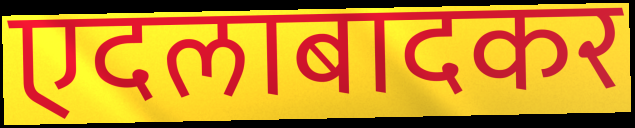
एदलाबादकर